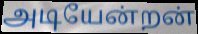
அடியேன்றன்